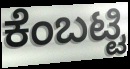
ಕೆಂಬಟ್ಟಿ